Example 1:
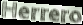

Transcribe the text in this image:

Herrero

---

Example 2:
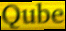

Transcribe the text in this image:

Qube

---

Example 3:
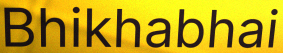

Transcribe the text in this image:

Bhikhabhai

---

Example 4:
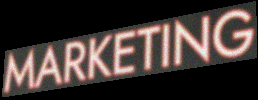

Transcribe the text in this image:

MARKETING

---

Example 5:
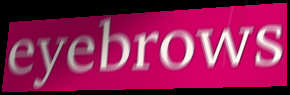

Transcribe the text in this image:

eyebrows